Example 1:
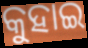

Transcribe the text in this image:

କୁହାଇ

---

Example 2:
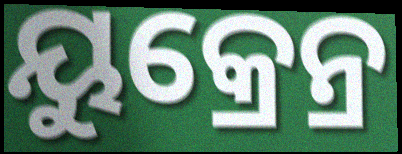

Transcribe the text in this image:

ୟୁକ୍ରେନ୍ର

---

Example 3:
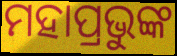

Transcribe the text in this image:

ମହାପ୍ରଭୁଙ୍କ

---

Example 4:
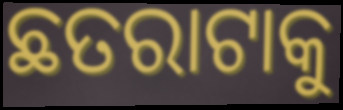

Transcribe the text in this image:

ଛତରାଟାକୁ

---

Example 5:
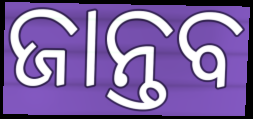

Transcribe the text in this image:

ଜାନ୍ତବ